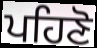
ਪਹਿਣੋ